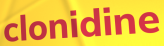
clonidine